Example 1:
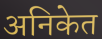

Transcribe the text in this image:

अनिकेत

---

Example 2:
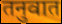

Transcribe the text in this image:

तनुवात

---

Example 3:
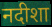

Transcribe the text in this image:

नदीशा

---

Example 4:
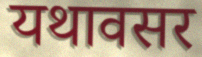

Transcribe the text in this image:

यथावसर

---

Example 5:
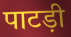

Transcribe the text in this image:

पाटड़ी